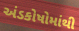
અંડકોષોમાંથી